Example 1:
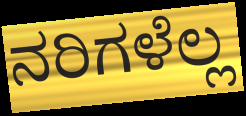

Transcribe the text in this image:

ನರಿಗಳೆಲ್ಲ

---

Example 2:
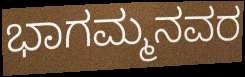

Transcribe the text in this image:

ಭಾಗಮ್ಮನವರ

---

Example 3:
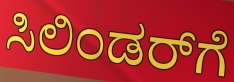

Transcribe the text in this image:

ಸಿಲಿಂಡರ್‌ಗೆ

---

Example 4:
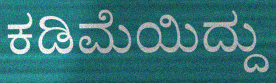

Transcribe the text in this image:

ಕಡಿಮೆಯಿದ್ದು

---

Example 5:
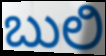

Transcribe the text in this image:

ಬುಲಿ